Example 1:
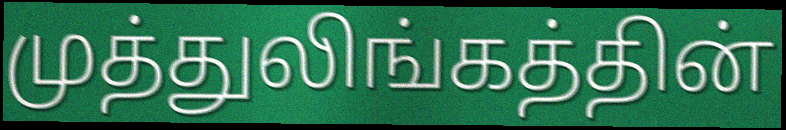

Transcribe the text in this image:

முத்துலிங்கத்தின்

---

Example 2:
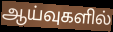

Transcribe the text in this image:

ஆய்வுகளில்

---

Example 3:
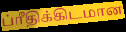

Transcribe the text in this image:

ப்ரீதிக்கிடமான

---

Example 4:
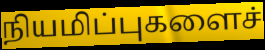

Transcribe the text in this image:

நியமிப்புகளைச்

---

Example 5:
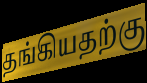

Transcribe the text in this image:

தங்கியதற்கு